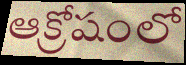
ఆక్రోషంలో